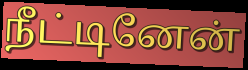
நீட்டினேன்